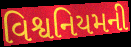
વિશ્વનિયમની